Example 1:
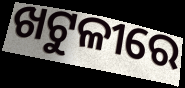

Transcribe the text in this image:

ଖଟୁଳୀରେ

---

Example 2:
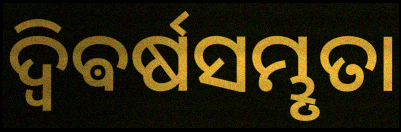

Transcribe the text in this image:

ଦ୍ଵିଵର୍ଷସମ୍ଭୃତା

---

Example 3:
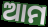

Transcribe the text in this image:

ଆମ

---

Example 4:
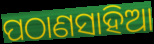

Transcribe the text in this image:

ପଠାଣସାହିଆ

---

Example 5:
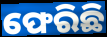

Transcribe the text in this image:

ଫେରିଛି